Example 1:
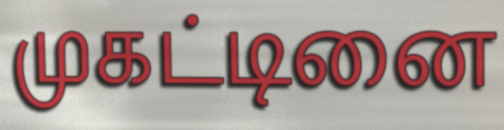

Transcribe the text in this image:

முகட்டினை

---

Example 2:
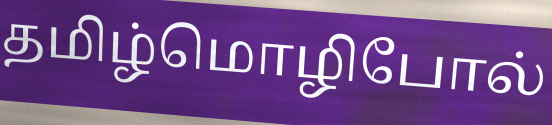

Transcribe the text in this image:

தமிழ்மொழிபோல்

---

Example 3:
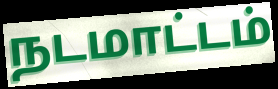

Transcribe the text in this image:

நடமாட்டம்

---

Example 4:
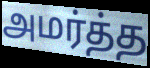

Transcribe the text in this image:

அமர்த்த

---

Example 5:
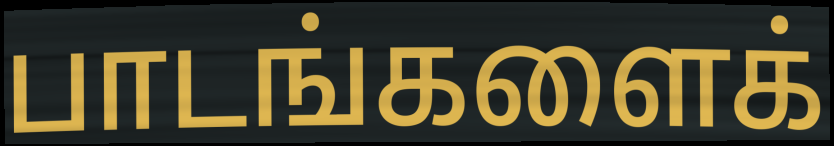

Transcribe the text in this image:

பாடங்களைக்